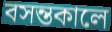
বসন্তকালে